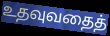
உதவுவதைத்